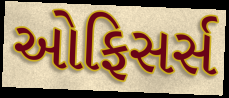
ઓફિસર્સ